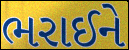
ભરાઈને